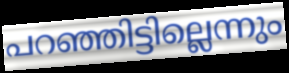
പറഞ്ഞിട്ടില്ലെന്നും